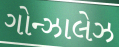
ગોન્ઝાલેઝ